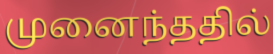
முனைந்ததில்